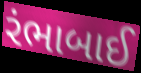
રંભાબાઈ